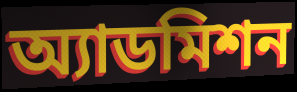
অ্যাডমিশন